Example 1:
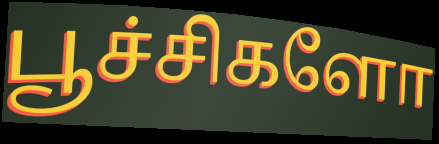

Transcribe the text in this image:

பூச்சிகளோ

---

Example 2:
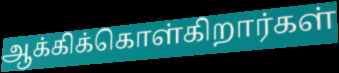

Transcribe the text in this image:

ஆக்கிக்கொள்கிறார்கள்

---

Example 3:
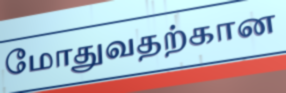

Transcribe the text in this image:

மோதுவதற்கான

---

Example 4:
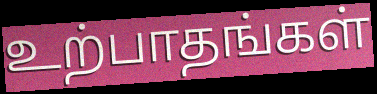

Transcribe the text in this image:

உற்பாதங்கள்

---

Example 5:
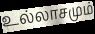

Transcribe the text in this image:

உல்லாசமும்